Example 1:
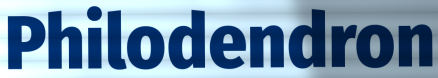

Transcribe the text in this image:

Philodendron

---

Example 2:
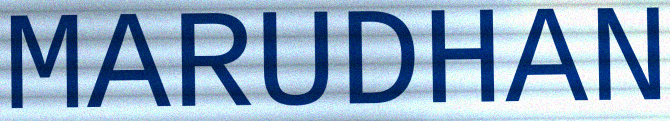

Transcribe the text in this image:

MARUDHAN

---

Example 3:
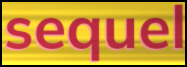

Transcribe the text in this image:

sequel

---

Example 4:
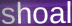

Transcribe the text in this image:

shoal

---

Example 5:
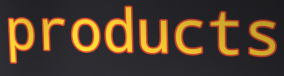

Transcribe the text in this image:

products